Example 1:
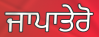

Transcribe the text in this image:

ਜਾਪਾਤੇਰੋ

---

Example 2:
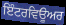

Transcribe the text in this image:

ਇੰਟਰਵਿਊਅਰ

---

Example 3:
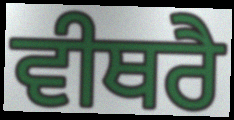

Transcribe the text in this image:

ਵੀਥਰੈ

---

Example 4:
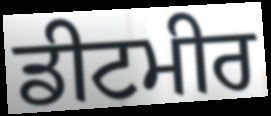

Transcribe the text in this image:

ਡੀਟਮੀਰ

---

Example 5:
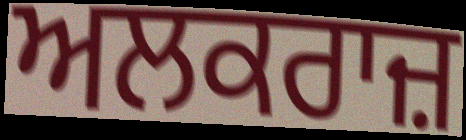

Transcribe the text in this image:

ਅਲਕਰਾਜ਼